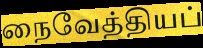
நைவேத்தியப்